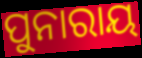
ପୁନାରାୟ